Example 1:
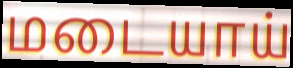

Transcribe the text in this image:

மடையாய்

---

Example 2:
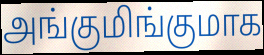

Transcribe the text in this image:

அங்குமிங்குமாக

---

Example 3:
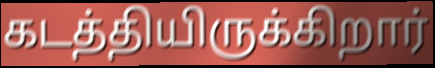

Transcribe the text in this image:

கடத்தியிருக்கிறார்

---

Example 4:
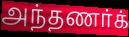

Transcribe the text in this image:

அந்தணர்க்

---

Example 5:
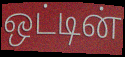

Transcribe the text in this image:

ஒட்டின்